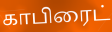
காபிரைட்